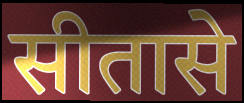
सीतासे